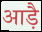
आड़ै